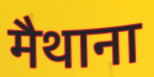
मैथाना